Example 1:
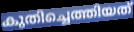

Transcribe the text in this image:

കുതിച്ചെത്തിയത്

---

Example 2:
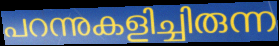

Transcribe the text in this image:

പറന്നുകളിച്ചിരുന്ന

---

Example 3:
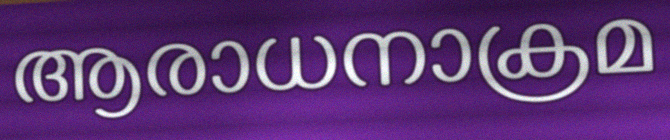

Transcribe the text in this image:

ആരാധനാക്രമ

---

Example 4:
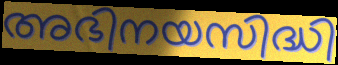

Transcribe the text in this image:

അഭിനയസിദ്ധി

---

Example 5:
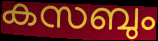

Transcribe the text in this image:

കസബും